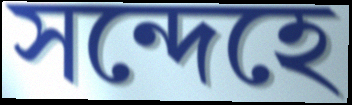
সন্দেহে